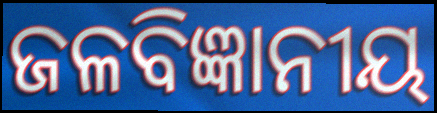
ଜଳବିଜ୍ଞାନୀୟ